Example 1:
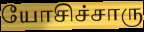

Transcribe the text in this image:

யோசிச்சாரு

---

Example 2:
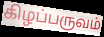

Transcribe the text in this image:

கிழப்பருவம்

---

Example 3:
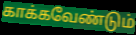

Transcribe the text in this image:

காக்கவேண்டும்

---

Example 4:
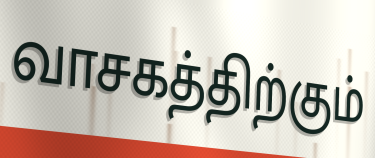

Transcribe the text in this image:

வாசகத்திற்கும்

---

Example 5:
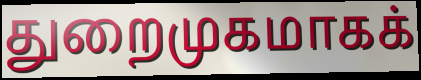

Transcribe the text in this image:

துறைமுகமாகக்